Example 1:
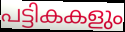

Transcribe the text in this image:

പട്ടികകളും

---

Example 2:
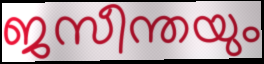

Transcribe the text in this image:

ജസീന്തയും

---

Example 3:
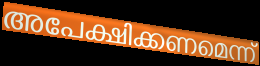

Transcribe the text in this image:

അപേക്ഷിക്കണമെന്ന്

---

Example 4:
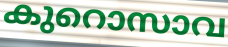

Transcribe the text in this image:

കുറൊസാവ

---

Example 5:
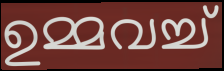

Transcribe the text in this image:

ഉമ്മവച്ച്